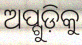
ଅପ୍ଗୁଡ଼ିକୁ